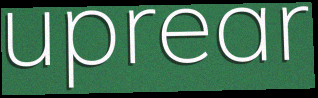
uprear